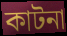
কাটনা